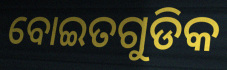
ବୋଇତଗୁଡିକ